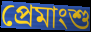
প্রেমাংশু